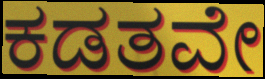
ಕಡತವೇ